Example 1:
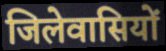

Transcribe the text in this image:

जिलेवासियों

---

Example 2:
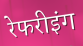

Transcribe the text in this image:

रेफरीइंग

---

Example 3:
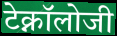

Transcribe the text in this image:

टेक्नॉलोजी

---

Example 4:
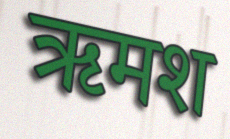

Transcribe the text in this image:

ऋमश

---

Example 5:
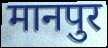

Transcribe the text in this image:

मानपुर